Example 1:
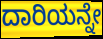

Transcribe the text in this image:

ದಾರಿಯನ್ನೇ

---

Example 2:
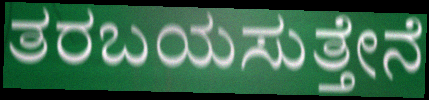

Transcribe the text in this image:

ತರಬಯಸುತ್ತೇನೆ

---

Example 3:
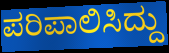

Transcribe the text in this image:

ಪರಿಪಾಲಿಸಿದ್ದು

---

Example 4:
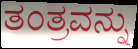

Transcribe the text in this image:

ತಂತ್ರವನ್ನು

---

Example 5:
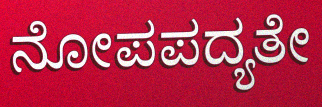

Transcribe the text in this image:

ನೋಪಪದ್ಯತೇ